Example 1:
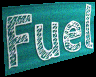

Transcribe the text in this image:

Fuel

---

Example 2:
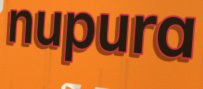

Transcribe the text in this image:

nupura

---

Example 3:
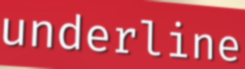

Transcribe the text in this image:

underline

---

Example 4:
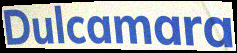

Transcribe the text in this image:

Dulcamara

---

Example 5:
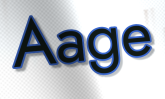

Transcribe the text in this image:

Aage